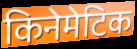
किनेमेटिक